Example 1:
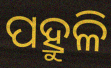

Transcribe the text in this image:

ପହ୍ରୁଳି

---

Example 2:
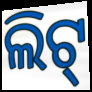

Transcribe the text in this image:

ଲିଟ୍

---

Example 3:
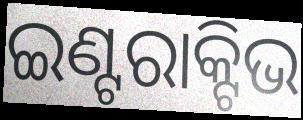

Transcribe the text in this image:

ଇଣ୍ଟରାକ୍ଟିଭ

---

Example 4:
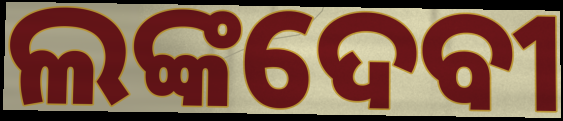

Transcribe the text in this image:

ଲଙ୍କଦେବୀ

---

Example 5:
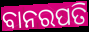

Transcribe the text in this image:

ବାନରପତି